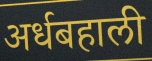
अर्धबहाली